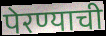
पेरण्याची